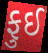
ફુઈ